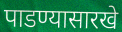
पाडण्यासारखे